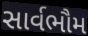
સાર્વભૌમ